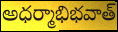
అధర్మాభిభవాత్